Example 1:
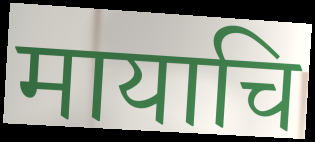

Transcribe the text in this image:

मायाचि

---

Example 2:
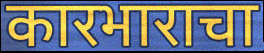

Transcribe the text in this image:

कारभाराचा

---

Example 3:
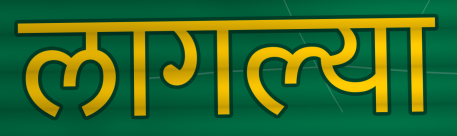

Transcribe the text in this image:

लागल्या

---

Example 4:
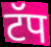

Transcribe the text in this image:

टॅप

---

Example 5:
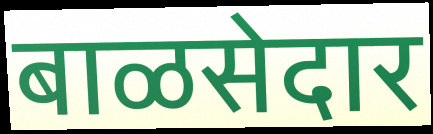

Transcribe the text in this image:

बाळसेदार